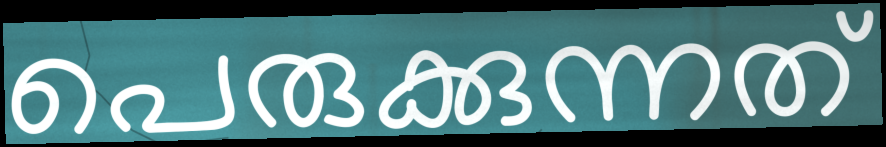
പെരുക്കുന്നത്